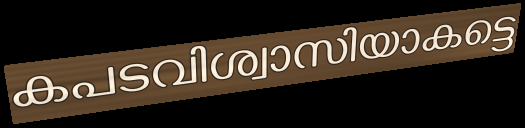
കപടവിശ്വാസിയാകട്ടെ